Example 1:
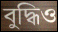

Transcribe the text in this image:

বুদ্ধিও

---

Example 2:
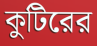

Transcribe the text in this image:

কুটিরের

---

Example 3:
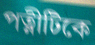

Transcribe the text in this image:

পত্নীটিকে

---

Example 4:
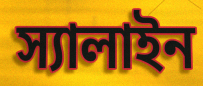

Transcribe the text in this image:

স্যালাইন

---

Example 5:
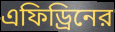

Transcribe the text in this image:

এফিড্রিনের